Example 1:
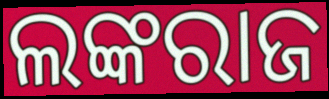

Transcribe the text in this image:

ଲଙ୍କରାଜ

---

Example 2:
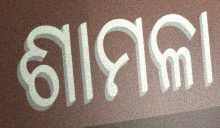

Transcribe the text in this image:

ଶାମଳା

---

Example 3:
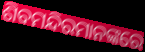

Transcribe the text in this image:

ଶିବମନ୍ଦିରମାନଙ୍କରେ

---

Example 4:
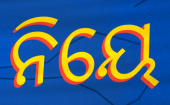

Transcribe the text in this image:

ନିୟେ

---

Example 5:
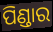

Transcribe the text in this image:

ପିଣ୍ଡାର